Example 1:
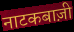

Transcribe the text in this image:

नाटकबाज़ी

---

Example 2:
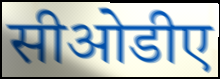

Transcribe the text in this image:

सीओडीए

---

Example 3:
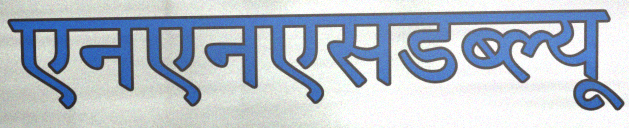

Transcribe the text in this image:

एनएनएसडब्ल्यू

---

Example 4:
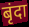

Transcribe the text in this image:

बृंदा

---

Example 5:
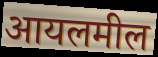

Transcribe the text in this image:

आयलमील